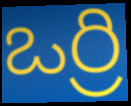
ఒర్రి